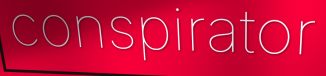
conspirator